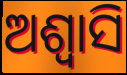
ଅଶ୍ୱାସି